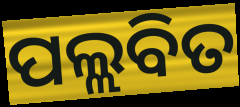
ପଲ୍ଲବିତ